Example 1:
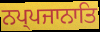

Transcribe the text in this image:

ਨਪ੍ਪਜਾਨਾਤਿ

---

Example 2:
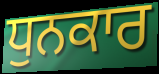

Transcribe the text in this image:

ਧੁਨਕਾਰ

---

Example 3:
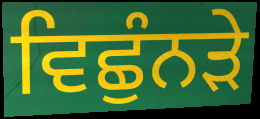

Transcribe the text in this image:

ਵਿਛੁੰਨੜੇ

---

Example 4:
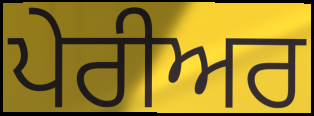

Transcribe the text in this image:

ਪੇਰੀਅਰ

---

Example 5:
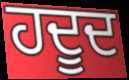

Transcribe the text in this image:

ਹਦੂਦ